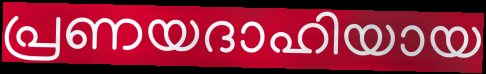
പ്രണയദാഹിയായ